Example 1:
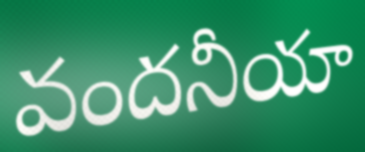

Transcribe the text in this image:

వందనీయా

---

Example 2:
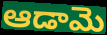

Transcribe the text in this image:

ఆడామె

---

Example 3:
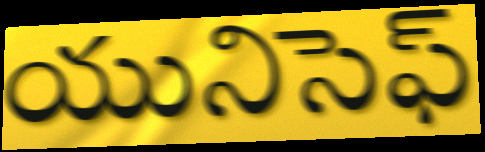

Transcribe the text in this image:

యునిసెఫ్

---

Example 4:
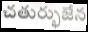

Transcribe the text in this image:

చతుర్భుజేన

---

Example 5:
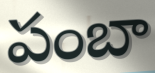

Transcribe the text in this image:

పంబా